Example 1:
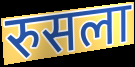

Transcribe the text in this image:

रुसला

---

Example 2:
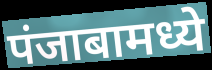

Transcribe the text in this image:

पंजाबामध्ये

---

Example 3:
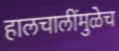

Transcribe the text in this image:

हालचालींमुळेच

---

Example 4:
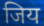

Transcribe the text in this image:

जिय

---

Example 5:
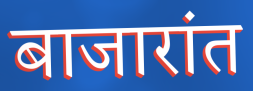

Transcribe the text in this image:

बाजारांत